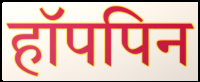
हॉपपिन